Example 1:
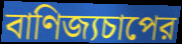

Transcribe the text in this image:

বাণিজ্যচাপের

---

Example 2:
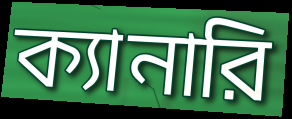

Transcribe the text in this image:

ক্যানারি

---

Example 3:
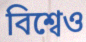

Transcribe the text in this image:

বিশ্বেও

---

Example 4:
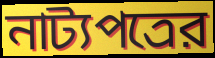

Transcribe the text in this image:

নাট্যপত্রের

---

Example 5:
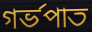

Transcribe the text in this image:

গর্ভপাত